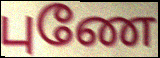
புணே